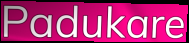
Padukare